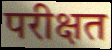
परीक्षत